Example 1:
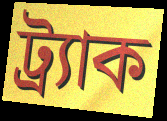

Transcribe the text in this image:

ট্র্যাক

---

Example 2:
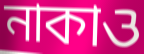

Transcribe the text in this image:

নাকাও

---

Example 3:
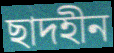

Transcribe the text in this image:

ছাদহীন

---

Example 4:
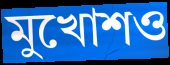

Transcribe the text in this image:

মুখোশও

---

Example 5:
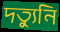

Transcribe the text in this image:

দত্যুনি